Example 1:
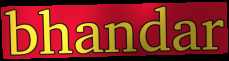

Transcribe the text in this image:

bhandar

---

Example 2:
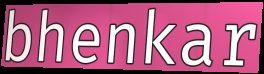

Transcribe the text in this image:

bhenkar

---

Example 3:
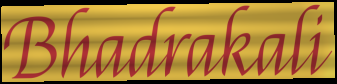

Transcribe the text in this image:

Bhadrakali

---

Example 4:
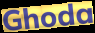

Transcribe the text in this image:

Ghoda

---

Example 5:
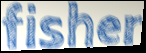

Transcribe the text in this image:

fisher